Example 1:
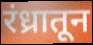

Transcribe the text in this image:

रंध्रातून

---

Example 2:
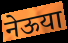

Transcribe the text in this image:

नेऊया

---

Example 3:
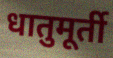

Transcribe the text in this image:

धातुमूर्ती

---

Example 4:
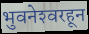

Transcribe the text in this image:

भुवनेश्वरहून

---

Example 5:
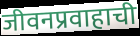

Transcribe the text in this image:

जीवनप्रवाहाची